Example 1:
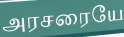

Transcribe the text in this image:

அரசரையே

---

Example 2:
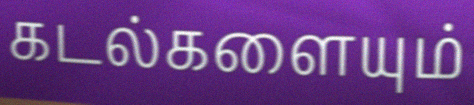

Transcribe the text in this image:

கடல்களையும்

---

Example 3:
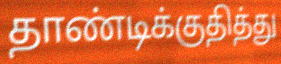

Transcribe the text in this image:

தாண்டிக்குதித்து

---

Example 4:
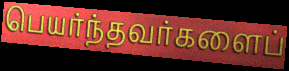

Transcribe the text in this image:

பெயர்ந்தவர்களைப்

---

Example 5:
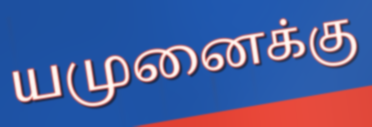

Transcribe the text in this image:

யமுனைக்கு